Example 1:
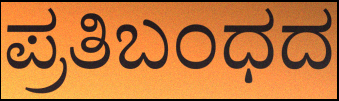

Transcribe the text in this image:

ಪ್ರತಿಬಂಧದ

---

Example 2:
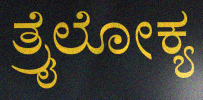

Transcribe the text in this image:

ತ್ರೈಲೋಕ್ಯ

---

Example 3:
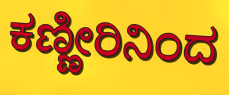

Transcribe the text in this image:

ಕಣ್ಣೀರಿನಿಂದ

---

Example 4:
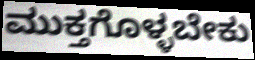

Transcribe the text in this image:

ಮುಕ್ತಗೊಳ್ಳಬೇಕು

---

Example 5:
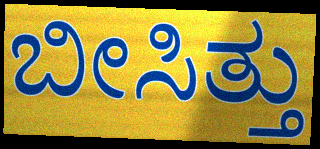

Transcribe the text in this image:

ಬೀಸಿತ್ತು